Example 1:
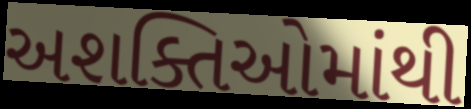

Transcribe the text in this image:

અશક્તિઓમાંથી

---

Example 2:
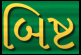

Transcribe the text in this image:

બિષ્ટ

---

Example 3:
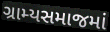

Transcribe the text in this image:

ગ્રામ્યસમાજમાં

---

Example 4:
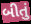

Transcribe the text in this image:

બીતું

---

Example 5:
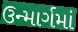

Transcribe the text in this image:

ઉન્માર્ગમાં